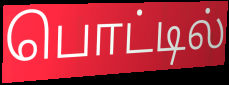
பொட்டில்